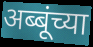
अब्बूंच्या